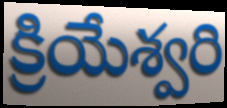
క్రియేశ్వరి